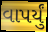
વાપર્યું